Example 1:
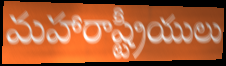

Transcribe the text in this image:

మహారాష్ట్రీయులు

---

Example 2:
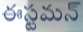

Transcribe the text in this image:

ఈస్టమన్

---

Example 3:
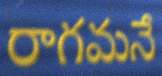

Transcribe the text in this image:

రాగమనే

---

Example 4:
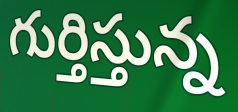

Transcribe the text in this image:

గుర్తిస్తున్న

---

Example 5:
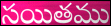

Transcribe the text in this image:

సయితము